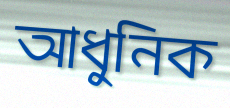
আধুনিক